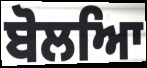
ਬੋਲਆਿ